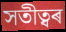
সতীত্বৰ